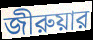
জীরুয়ার